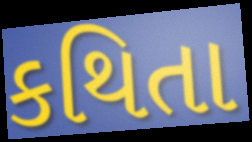
કથિતા